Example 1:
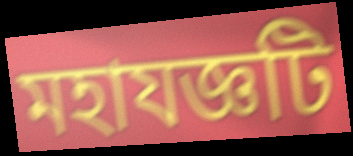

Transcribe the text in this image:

মহাযজ্ঞটি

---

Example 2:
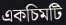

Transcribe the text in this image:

একচিমটি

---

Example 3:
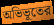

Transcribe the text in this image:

অভিভূতের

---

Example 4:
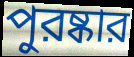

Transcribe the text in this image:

পুরষ্কার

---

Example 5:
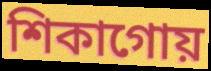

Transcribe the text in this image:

শিকাগোয়